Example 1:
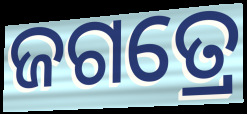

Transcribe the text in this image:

ଜଗତ୍ରେ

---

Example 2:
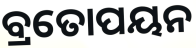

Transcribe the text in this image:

ବ୍ରତୋପୟନ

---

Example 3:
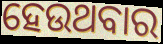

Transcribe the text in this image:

ହେଉଥବାର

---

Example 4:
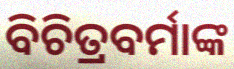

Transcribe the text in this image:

ବିଚିତ୍ରବର୍ମାଙ୍କ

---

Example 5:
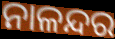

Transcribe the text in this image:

ନାଳନ୍ଦର